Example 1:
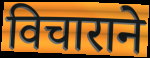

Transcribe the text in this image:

विचाराने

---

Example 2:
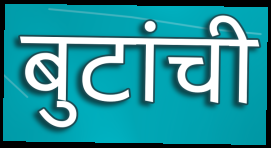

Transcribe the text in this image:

बुटांची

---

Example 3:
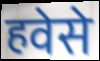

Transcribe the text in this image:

हवेसे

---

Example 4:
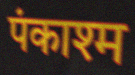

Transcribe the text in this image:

पंकाश्म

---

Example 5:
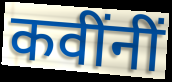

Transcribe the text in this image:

कवींनीं